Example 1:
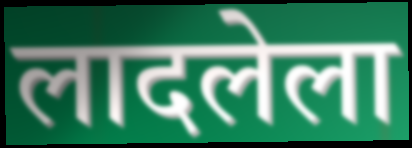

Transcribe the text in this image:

लादलेला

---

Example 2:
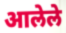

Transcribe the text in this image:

आलेले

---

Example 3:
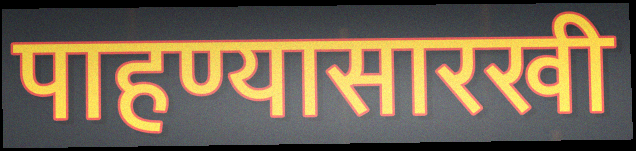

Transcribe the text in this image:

पाहण्यासारखी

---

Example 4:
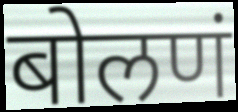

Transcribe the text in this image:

बोलणं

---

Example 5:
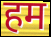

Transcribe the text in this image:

हम